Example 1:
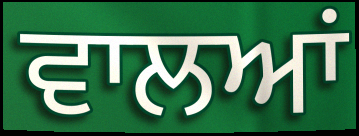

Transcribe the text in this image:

ਵਾਲਆਂ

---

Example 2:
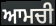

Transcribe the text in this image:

ਆਮਚੀ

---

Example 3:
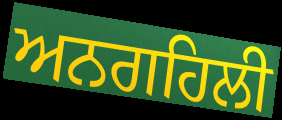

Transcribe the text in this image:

ਅਨਗਹਿਲੀ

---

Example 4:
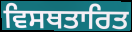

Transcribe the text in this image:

ਵਿਸਥਤਾਰਿਤ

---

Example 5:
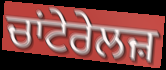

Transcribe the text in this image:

ਚਾਂਟੇਰੇਲਜ਼